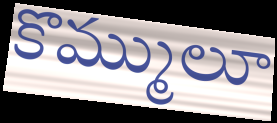
కొమ్ములూ